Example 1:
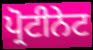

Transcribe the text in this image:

ਪ੍ਰੋਟੀਨੇਟ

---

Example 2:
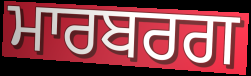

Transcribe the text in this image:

ਮਾਰਬਰਗ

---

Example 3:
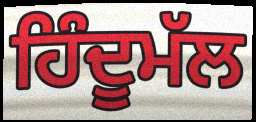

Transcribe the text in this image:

ਹਿੰਦੂਮੱਲ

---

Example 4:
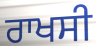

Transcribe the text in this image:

ਰਾਖਸੀ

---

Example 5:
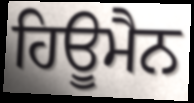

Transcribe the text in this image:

ਹਿਊਮੈਨ